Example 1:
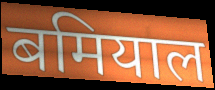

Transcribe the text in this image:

बमियाल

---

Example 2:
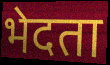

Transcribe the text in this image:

भेदता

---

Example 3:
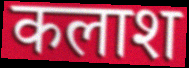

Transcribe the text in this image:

कलाश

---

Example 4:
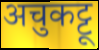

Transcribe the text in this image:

अचुकट्टू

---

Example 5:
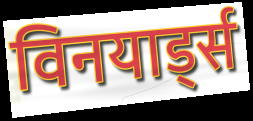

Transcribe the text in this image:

विनयार्ड्स